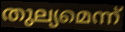
തുല്യമെന്ന്